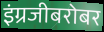
इंग्रजीबरोबर